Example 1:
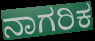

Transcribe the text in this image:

ನಾಗರಿಕ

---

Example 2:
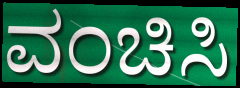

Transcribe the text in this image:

ವಂಚಿಸಿ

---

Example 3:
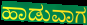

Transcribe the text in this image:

ಹಾಡುವಾಗ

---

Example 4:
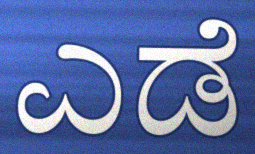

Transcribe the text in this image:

ಎಡೆ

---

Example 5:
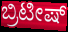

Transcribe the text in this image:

ಬ್ರಿಟೀಷ್